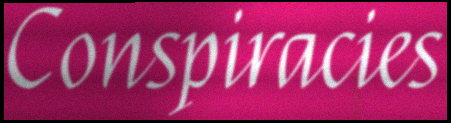
Conspiracies